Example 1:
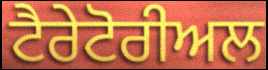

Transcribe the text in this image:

ਟੈਰੇਟੋਰੀਅਲ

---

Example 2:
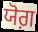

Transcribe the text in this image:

ਯੋਗ਼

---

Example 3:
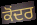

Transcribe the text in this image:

ਕੋਂਦਰ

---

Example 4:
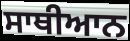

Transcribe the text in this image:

ਸਾਥੀਆਨ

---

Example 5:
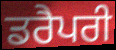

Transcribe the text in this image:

ਡਰੈਪਰੀ